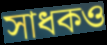
সাধকও